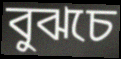
বুঝচে